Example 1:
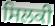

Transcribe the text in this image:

ਸਿਲਕੀ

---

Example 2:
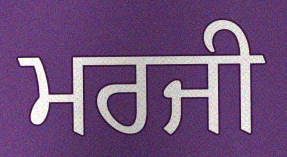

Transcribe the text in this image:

ਮਰਜੀ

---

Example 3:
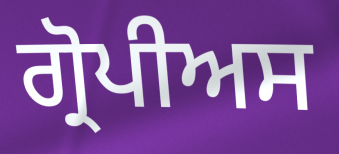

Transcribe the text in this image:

ਗ੍ਰੋਪੀਅਸ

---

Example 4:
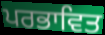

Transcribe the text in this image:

ਪਰਭਾਵਿਤ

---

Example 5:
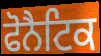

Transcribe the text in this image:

ਫੋਨੈਟਿਕ